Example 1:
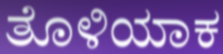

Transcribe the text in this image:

ತೊಳಿಯಾಕ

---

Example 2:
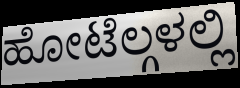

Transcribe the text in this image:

ಹೋಟೆಲ್ಗಳಲ್ಲಿ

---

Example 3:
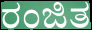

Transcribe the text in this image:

ರಂಜಿತ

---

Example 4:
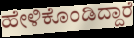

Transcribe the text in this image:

ಹೇಳಿಕೊಂಡಿದ್ದಾರೆ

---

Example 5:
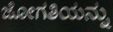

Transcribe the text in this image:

ಜೋಗತಿಯನ್ನು